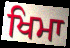
ਖਿਮਾ